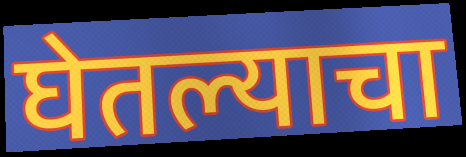
घेतल्याचा